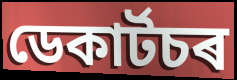
ডেকাৰ্টচৰ